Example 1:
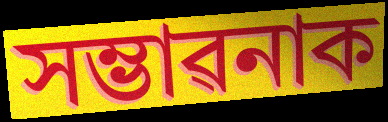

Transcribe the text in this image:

সম্ভাৱনাক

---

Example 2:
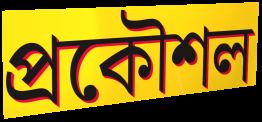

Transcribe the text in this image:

প্ৰকৌশল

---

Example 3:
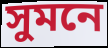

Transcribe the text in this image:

সুমনে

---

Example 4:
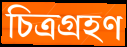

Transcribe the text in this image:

চিত্ৰগ্ৰহণ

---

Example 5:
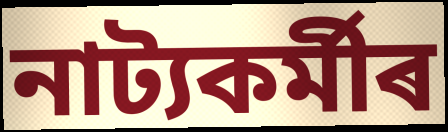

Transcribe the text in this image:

নাট্যকৰ্মীৰ